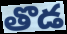
తొడ